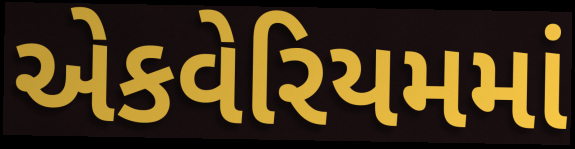
એકવેરિયમમાં